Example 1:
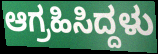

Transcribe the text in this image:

ಆಗ್ರಹಿಸಿದ್ದಳು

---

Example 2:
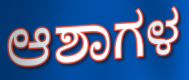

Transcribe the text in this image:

ಆಶಾಗಳ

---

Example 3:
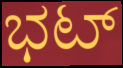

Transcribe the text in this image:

ಭಟ್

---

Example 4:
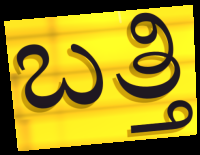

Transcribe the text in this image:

ಬತ್ತಿ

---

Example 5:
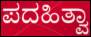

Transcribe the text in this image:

ಪದಹಿತ್ವಾ